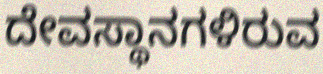
ದೇವಸ್ಥಾನಗಳಿರುವ